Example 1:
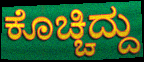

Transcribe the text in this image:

ಕೊಚ್ಚಿದ್ದು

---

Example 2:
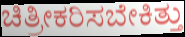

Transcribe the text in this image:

ಚಿತ್ರೀಕರಿಸಬೇಕಿತ್ತು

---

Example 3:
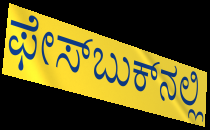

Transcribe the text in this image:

ಫೇಸ್‌ಬುಕ್‌ನಲ್ಲಿ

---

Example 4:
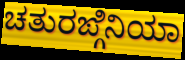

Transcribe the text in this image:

ಚತುರಙ್ಗಿನಿಯಾ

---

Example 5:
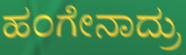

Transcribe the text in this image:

ಹಂಗೇನಾದ್ರು